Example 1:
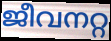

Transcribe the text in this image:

ജീവനറ്റ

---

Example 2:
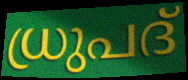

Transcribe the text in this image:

ധ്രുപദ്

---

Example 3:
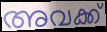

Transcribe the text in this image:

അവക്ക്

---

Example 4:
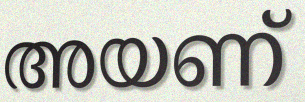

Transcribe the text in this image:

അയണ്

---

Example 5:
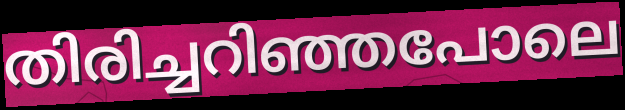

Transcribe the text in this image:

തിരിച്ചറിഞ്ഞപോലെ